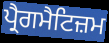
ਪ੍ਰੈਗਮੈਟਿਜ਼ਮ